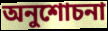
অনুশোচনা